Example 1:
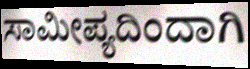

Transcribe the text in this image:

ಸಾಮೀಪ್ಯದಿಂದಾಗಿ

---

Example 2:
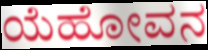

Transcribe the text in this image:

ಯೆಹೋವನ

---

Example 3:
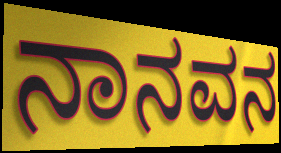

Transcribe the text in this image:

ನಾನವನ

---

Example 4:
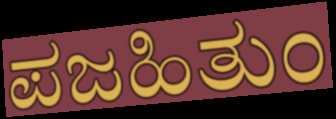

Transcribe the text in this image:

ಪಜಹಿತುಂ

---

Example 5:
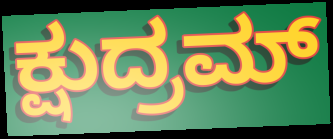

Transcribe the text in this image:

ಕ್ಷುದ್ರಮ್